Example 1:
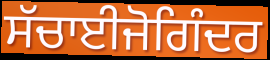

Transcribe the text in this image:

ਸੱਚਾਈਜੋਗਿੰਦਰ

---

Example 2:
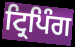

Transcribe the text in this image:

ਟ੍ਰਿਪਿੰਗ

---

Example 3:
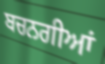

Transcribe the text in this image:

ਬਚਨਗੀਆਂ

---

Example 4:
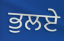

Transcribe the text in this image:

ਭੁਲਏ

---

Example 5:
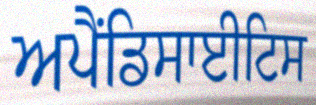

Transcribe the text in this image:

ਅਪੈਂਡਿਸਾਈਟਿਸ